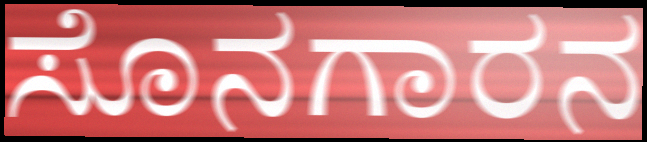
ಸೊನಗಾರನ